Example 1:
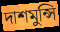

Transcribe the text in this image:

দাশমুন্সি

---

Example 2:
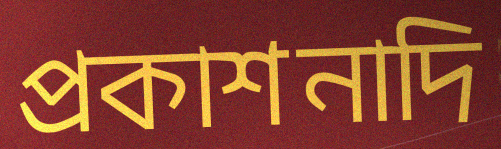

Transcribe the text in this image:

প্রকাশনাদি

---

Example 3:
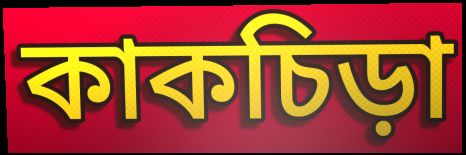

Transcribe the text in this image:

কাকচিড়া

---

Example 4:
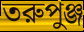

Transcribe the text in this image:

তরুপুঞ্জ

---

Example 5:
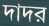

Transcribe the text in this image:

দাদর